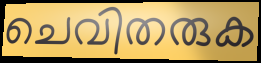
ചെവിതരുക